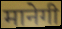
मानेगी